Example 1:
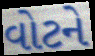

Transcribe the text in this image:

વોટને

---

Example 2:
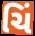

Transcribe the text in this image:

ચિં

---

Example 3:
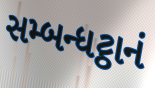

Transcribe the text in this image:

સમ્બન્ધટ્ઠાનં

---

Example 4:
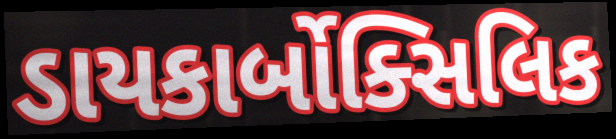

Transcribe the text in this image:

ડાયકાર્બોક્સિલિક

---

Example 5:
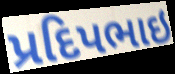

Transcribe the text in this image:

પ્રદિપભાઇ